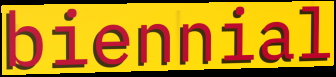
biennial